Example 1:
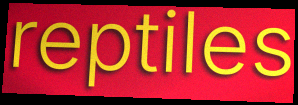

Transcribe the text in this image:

reptiles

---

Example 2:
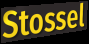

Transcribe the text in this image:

Stossel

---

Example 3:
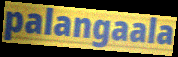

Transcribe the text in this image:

palangaala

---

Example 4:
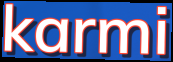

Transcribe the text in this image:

karmi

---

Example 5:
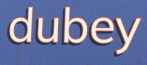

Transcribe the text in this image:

dubey